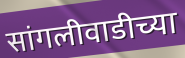
सांगलीवाडीच्या